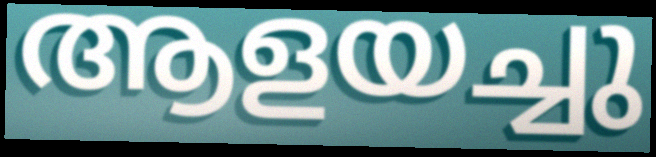
ആളയച്ചു